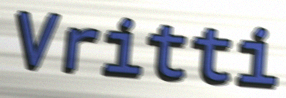
Vritti